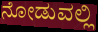
ನೋಡುವಲ್ಲಿ